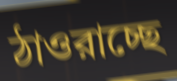
ঠাওরাচ্ছে